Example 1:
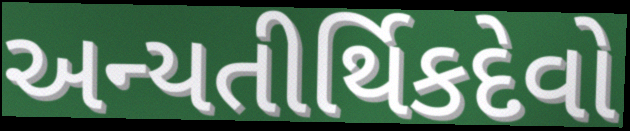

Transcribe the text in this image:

અન્યતીર્થિકદેવો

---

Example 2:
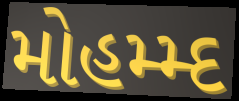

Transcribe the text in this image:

મોહમ્મ્દ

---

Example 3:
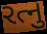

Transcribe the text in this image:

રત્નુ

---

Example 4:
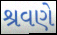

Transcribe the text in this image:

શ્રવણે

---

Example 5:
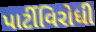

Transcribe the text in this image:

પાર્ટીવિરોધી